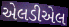
એલડીએલ